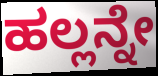
ಹಲ್ಲನ್ನೇ